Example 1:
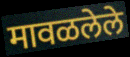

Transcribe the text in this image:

मावळलेले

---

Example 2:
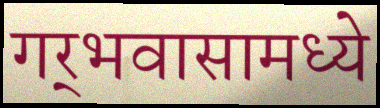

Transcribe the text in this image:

गर्भवासामध्ये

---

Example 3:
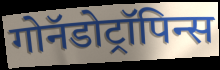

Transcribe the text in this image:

गोनॅडोट्रॉपिन्स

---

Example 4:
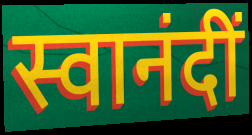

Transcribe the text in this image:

स्वानंदीं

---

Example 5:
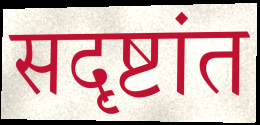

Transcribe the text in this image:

सदृष्टांत